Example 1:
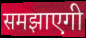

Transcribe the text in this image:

समझाएगी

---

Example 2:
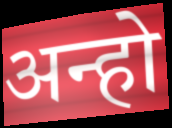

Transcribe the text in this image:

अन्हो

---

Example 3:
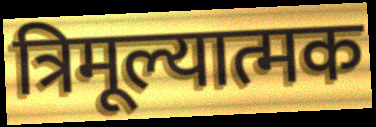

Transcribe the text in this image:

त्रिमूल्यात्मक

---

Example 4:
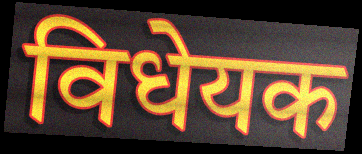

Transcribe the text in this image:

विधेयक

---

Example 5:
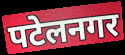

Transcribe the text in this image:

पटेलनगर